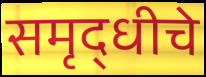
समृद्धीचे